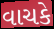
વાચકે